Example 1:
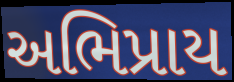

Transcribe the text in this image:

અભિપ્રાય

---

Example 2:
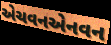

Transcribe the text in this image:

એચવનએનવન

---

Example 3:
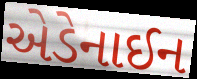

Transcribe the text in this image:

એડેનાઈન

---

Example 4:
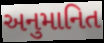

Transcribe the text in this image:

અનુમાનિત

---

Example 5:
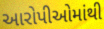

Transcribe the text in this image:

આરોપીઓમાંથી